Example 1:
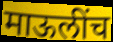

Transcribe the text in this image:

माऊलींच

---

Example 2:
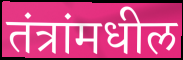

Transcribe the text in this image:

तंत्रांमधील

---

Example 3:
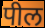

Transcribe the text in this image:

पील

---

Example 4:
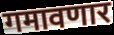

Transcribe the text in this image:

गमावणार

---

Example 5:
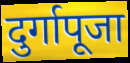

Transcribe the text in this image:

दुर्गापूजा